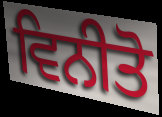
ਵਿਨੀਤੋ